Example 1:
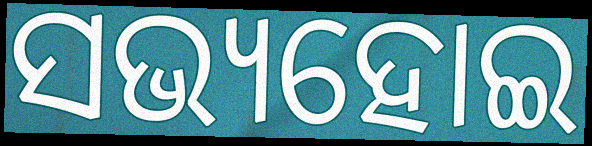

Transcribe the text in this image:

ସଭ୍ୟହୋଇ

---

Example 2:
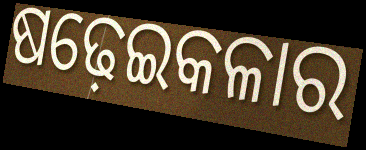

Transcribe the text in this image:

ଷଢ଼େଇକଳାର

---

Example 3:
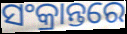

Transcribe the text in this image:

ସଂକ୍ରାନ୍ତରେ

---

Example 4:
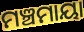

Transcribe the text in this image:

ମଞ୍ଚମାୟା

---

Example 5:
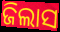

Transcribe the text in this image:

ଜିଲାସ